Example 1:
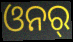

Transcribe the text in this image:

ଓନର୍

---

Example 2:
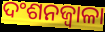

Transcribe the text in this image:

ଦଂଶନଜ୍ୱାଳା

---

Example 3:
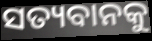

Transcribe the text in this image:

ସତ୍ୟବାନକୁ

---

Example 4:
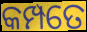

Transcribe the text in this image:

କମ୍ପତେ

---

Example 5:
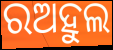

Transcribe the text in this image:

ରଅହୁଲ